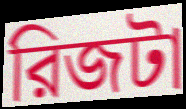
রিজটা